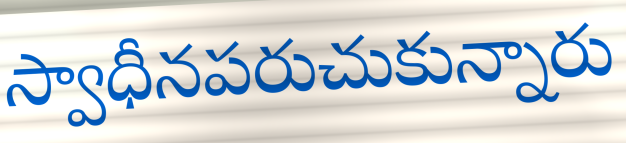
స్వాధీనపరుచుకున్నారు